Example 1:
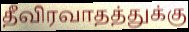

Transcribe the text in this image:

தீவிரவாதத்துக்கு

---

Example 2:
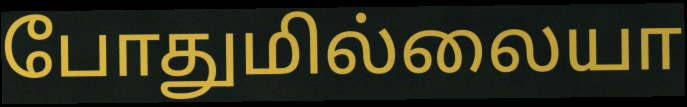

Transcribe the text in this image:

போதுமில்லையா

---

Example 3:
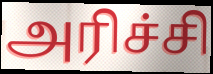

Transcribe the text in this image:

அரிச்சி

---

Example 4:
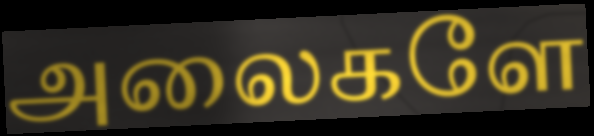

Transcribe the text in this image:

அலைகளே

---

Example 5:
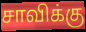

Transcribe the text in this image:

சாவிக்கு